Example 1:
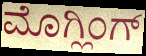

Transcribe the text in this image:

ಮೊಗ್ಲಿಂಗ್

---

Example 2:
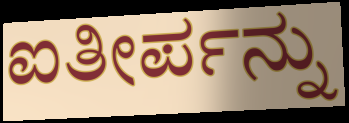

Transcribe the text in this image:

ಐತೀರ್ಪನ್ನು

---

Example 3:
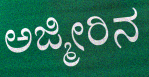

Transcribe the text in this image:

ಅಜ್ಮೀರಿನ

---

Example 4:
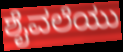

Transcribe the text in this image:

ಶೈವಲೆಯು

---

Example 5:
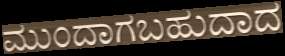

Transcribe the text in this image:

ಮುಂದಾಗಬಹುದಾದ